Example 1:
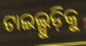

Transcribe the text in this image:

ଟାଇଲ୍ଗୁଡ଼ିକୁ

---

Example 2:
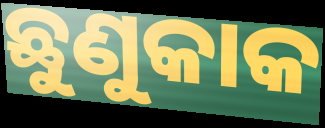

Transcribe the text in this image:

ଛୁଣୁକାକ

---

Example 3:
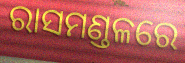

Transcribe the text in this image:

ରାସମଣ୍ଡଳରେ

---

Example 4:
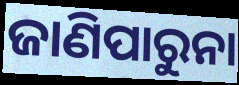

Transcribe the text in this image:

ଜାଣିପାରୁନା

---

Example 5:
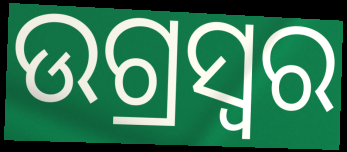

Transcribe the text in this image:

ଉଗ୍ରସ୍ୱର